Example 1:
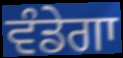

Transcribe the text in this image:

ਵੰਡੇਗਾ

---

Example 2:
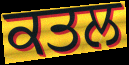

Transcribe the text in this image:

ਕਤਲ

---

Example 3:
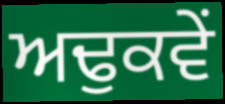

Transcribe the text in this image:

ਅਢੁਕਵੇਂ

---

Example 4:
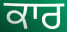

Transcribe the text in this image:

ਕਾਰ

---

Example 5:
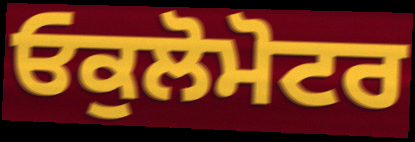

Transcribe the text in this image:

ਓਕੁਲੋਮੋਟਰ